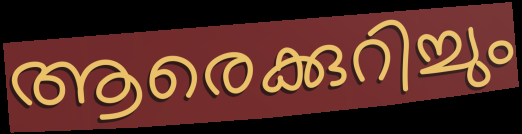
ആരെക്കുറിച്ചും